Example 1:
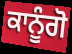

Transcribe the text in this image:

ਕਾਨੂੰਗੋ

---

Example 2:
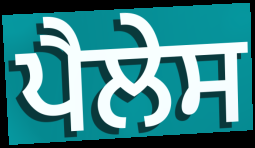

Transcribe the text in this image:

ਪੈਲੇਸ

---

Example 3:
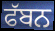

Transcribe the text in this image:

ਫੱਬਨ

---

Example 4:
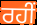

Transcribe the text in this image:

ਰਹੀਂ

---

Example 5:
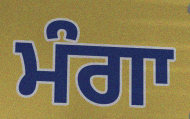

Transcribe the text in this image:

ਮੰਗਾ